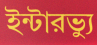
ইন্টারভ্যু